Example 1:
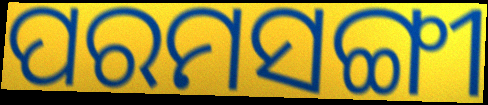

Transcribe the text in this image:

ପରମସଙ୍ଗୀ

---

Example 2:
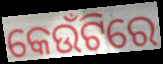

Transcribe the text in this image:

କେଉଁଟିରେ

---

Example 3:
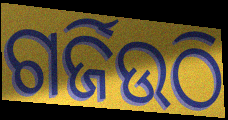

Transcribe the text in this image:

ଗର୍ଜିଉଠି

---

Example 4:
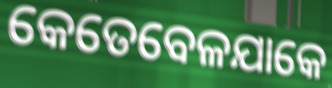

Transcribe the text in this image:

କେତେବେଳଯାକେ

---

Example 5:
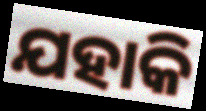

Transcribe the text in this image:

ଯହାକି